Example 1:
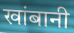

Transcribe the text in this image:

खांबानी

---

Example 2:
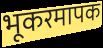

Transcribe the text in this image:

भूकरमापक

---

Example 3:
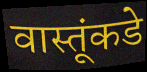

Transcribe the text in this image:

वास्तूंकडे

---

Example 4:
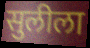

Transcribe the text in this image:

सुलीला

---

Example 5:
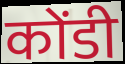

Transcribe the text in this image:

कोंडी